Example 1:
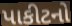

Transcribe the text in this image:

પાકીટનો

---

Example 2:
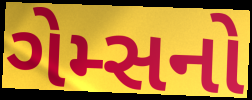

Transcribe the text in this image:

ગેમ્સનો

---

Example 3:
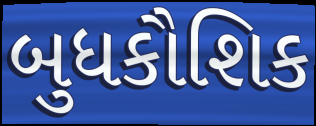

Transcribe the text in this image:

બુધકૌશિક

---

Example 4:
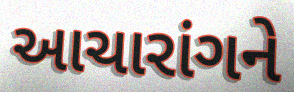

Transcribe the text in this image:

આચારાંગને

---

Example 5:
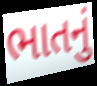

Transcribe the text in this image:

ભાતનું